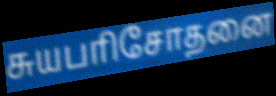
சுயபரிசோதனை